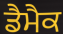
ਡੈਮੈਕ